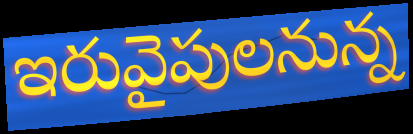
ఇరువైపులనున్న